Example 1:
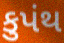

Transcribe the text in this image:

કુપંથ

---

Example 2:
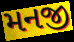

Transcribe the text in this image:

મનજી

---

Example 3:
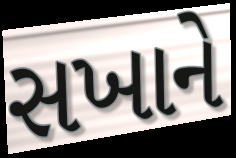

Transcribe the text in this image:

સખાને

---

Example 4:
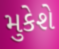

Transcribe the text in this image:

મુકેશે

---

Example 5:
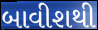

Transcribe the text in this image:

બાવીશથી